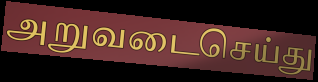
அறுவடைசெய்து